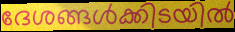
ദേശങ്ങൾക്കിടയിൽ